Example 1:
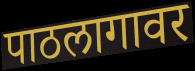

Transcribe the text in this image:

पाठलागावर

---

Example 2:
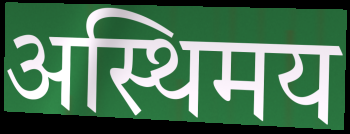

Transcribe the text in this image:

अस्थिमय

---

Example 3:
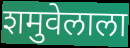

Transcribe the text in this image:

शमुवेलाला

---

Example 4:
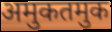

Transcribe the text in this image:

अमुकतमुक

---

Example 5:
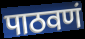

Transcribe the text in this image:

पाठवणं